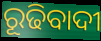
ରୂଢିବାଦୀ